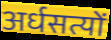
अर्धसत्यों